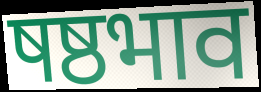
षष्ठभाव